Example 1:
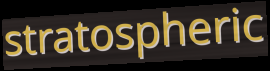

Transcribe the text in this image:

stratospheric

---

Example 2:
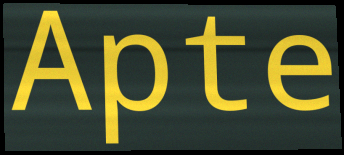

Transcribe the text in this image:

Apte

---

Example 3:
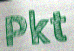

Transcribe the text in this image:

Pkt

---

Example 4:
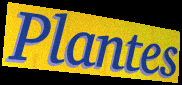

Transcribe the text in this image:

Plantes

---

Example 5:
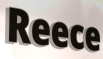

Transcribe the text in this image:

Reece